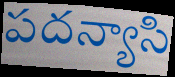
పదన్యాసి